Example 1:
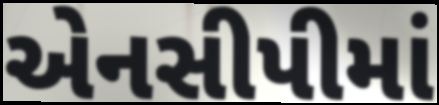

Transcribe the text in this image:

એનસીપીમાં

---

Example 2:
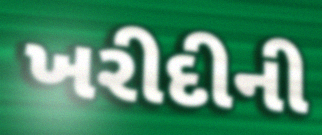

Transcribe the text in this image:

ખરીદીની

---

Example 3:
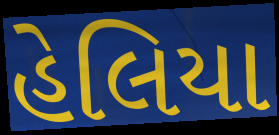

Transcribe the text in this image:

હેલિયા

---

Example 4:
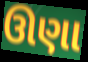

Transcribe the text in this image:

ઊણા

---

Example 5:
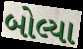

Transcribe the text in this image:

બોલ્યા